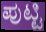
ಪುಟ್ಟಿ